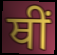
ਥੀਂ